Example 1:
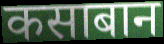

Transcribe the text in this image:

कसाबान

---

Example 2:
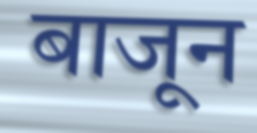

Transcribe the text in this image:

बाजून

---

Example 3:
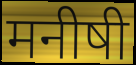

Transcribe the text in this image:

मनीषी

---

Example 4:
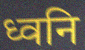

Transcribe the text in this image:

ध्वनि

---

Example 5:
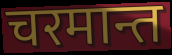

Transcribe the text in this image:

चरमान्त